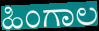
ಹಿಂಗಾಲ